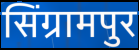
सिंग्रामपुर